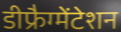
डीफ्रैग्मेंटेशन